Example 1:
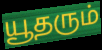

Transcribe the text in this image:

யூதரும்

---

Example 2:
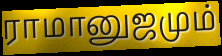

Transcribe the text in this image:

ராமானுஜமும்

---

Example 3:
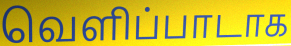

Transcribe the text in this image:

வெளிப்பாடாக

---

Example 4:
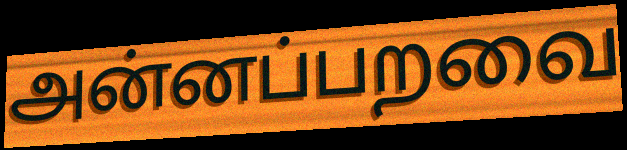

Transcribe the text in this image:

அன்னப்பறவை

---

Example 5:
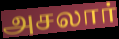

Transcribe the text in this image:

அசலார்